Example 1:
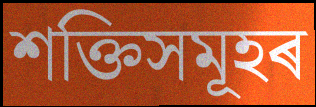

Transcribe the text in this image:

শক্তিসমূহৰ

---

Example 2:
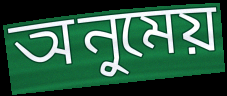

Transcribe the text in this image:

অনুমেয়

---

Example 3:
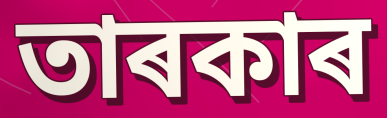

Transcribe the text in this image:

তাৰকাৰ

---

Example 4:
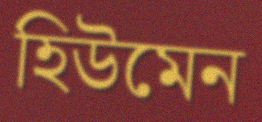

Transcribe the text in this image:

হিউমেন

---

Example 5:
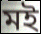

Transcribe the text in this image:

মই